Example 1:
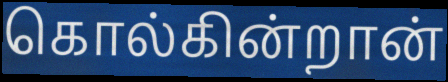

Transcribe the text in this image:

கொல்கின்றான்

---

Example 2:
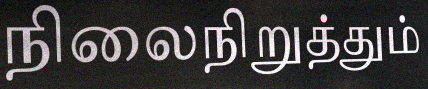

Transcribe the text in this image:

நிலைநிறுத்தும்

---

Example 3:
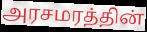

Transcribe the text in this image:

அரசமரத்தின்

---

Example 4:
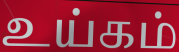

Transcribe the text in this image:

உய்கம்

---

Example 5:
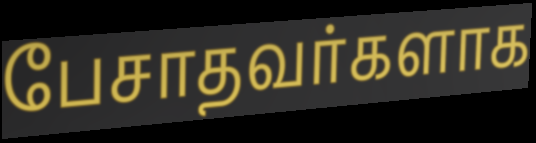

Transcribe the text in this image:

பேசாதவர்களாக